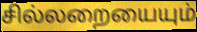
சில்லறையையும்